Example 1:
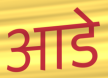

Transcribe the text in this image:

आडे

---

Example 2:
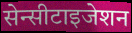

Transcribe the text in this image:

सेन्सीटाइजेशन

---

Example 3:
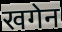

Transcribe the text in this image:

खगेन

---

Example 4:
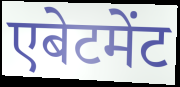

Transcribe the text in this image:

एबेटमेंट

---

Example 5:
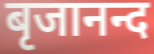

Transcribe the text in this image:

बृजानन्द